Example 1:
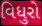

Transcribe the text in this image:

વિધુરો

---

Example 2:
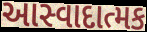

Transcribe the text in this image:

આસ્વાદાત્મક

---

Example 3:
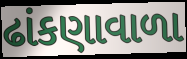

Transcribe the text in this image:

ઢાંકણાવાળા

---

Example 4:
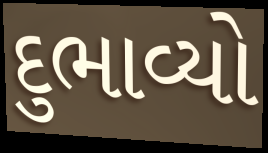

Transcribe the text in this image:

દુભાવ્યો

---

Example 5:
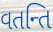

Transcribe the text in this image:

વતન્તિ